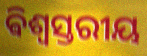
ଵିଶ୍ୱସ୍ତରୀୟ